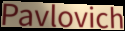
Pavlovich